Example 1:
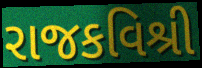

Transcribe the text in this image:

રાજકવિશ્રી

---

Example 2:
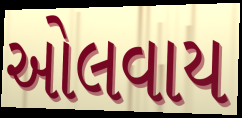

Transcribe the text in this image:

ઓલવાય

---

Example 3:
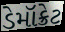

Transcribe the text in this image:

ડેમૉક્રેટ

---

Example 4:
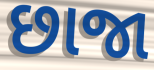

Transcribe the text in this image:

છાજા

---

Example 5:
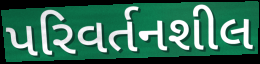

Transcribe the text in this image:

પરિવર્તનશીલ